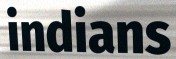
indians